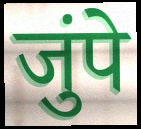
जुंपे